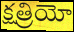
క్షత్రియో